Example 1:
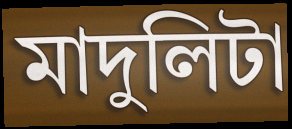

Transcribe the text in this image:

মাদুলিটা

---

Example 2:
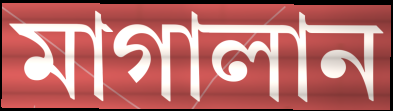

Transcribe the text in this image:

মাগালান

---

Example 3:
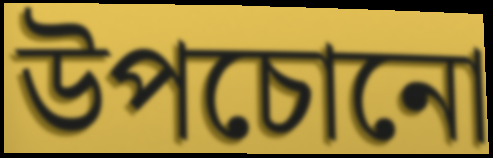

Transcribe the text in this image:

উপচোনো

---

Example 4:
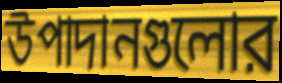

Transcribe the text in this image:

উপাদানগুলোর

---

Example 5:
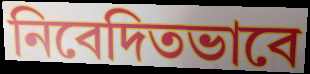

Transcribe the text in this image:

নিবেদিতভাবে